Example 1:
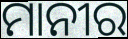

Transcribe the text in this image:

ମାନୀର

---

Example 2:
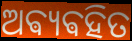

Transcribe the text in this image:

ଅଵ୍ୟଵହିତ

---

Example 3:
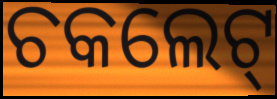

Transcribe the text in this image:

ଚକଲେଟ୍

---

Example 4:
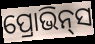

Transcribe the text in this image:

ପ୍ରୋଭିନ୍‌ସ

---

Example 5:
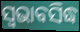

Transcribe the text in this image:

ସ୍ଵଭାବସିଦ୍ଧ